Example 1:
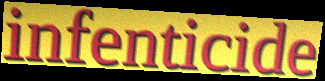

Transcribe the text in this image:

infenticide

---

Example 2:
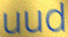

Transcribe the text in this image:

uud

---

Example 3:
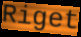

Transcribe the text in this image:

Riget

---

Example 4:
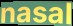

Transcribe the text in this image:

nasal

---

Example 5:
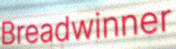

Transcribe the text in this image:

Breadwinner